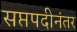
सप्तपदीनंतर